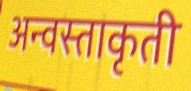
अन्वस्ताकृती